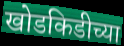
खोडकिडीच्या